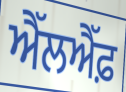
ਐੱਲਐੱਫ਼